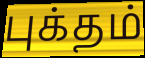
புக்தம்